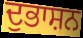
ਦੁਭਾਸ਼ਨ